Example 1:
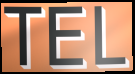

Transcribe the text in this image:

TEL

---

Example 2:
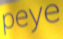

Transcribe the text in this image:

peye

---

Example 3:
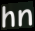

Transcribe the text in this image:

hn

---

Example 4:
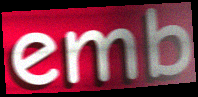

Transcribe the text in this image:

emb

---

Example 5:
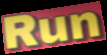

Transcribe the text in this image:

Run